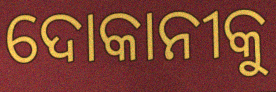
ଦୋକାନୀକୁ